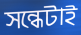
সন্ধেটাই